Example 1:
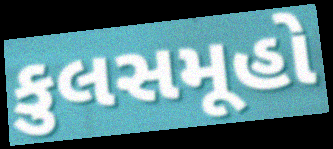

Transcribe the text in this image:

કુલસમૂહો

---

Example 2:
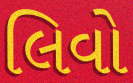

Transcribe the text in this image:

લિવો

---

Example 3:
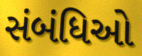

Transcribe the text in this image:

સંબંધિઓ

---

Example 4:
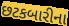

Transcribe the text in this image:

છટકબારીના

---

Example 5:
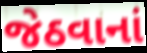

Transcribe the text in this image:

જેઠવાનાં